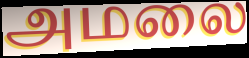
அமலை